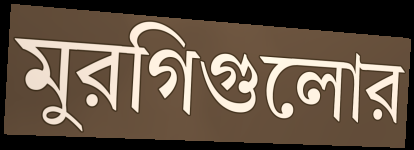
মুরগিগুলোর